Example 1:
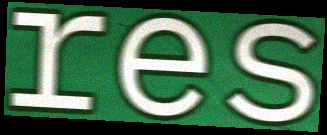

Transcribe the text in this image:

res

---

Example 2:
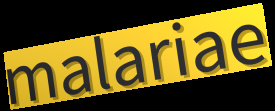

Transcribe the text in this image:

malariae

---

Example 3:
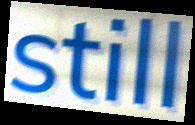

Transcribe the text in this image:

still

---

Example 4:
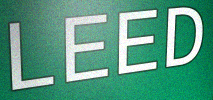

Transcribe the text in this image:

LEED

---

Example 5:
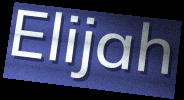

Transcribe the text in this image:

Elijah